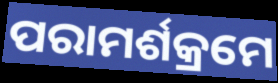
ପରାମର୍ଶକ୍ରମେ